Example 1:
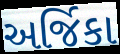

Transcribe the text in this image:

અર્જિકા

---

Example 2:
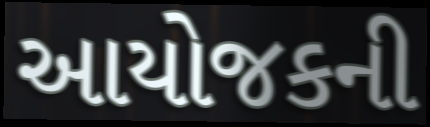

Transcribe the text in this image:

આયોજકની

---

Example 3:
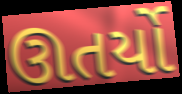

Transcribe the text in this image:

ઊતર્યો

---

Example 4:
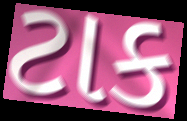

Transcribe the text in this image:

ટાક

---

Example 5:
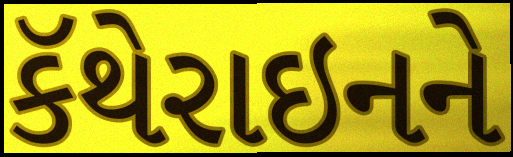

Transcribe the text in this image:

કૅથેરાઇનને